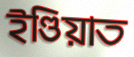
ইণ্ডিয়াত